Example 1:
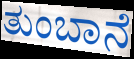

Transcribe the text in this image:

ತುಂಬಾನೆ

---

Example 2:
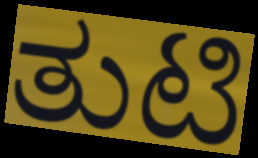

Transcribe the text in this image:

ತುಟಿ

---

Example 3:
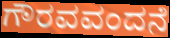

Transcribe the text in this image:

ಗೌರವವಂದನೆ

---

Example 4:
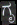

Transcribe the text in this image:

ಗೃ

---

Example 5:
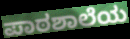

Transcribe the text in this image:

ಪಾಠಶಾಲೆಯ